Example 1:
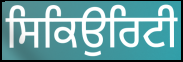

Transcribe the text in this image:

ਸਿਕਿਉਰਿਟੀ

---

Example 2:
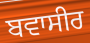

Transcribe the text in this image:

ਬਵਾਸੀਰ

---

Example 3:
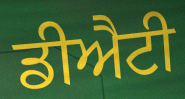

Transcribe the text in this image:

ਡੀਐਟੀ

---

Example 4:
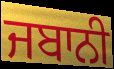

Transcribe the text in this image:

ਜਬਾਨੀ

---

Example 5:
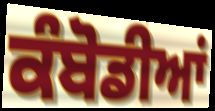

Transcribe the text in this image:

ਕੰਬੋਡੀਆਂ